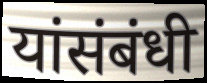
यांसंबंधी